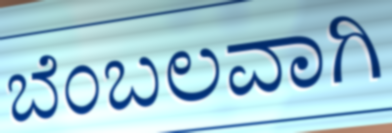
ಬೆಂಬಲವಾಗಿ